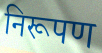
निरूपण